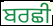
ਬਰਛੀ